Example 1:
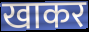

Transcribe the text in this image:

खाकर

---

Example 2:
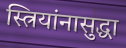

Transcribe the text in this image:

स्त्रियांनासुद्धा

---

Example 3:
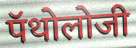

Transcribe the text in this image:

पॅथोलोजी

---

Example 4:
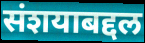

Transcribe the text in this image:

संशयाबद्दल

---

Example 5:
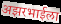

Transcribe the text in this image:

अझरभाईला